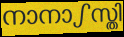
നാനാഽസ്തി